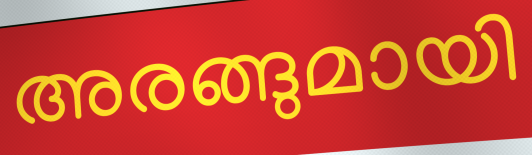
അരങ്ങുമായി